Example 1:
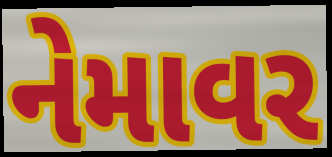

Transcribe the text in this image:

નેમાવર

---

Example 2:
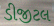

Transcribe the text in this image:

ડીજીટલ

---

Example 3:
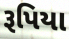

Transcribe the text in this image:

રૂપિયા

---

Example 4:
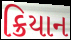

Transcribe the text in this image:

ક્રિયાન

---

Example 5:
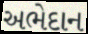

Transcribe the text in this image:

અભેદાન